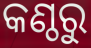
କଣ୍ଠରୁ